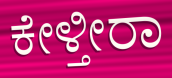
ಕೇಳ್ತೀರಾ